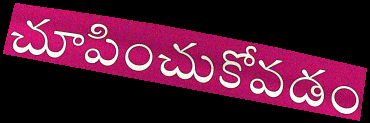
చూపించుకోవడం